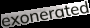
exonerated